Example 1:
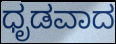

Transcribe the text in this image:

ಧೃಡವಾದ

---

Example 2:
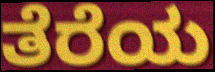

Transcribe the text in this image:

ತೆರೆಯ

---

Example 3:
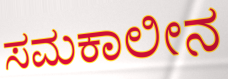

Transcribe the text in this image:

ಸಮಕಾಲೀನ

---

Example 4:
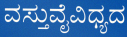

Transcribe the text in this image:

ವಸ್ತುವೈವಿಧ್ಯದ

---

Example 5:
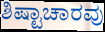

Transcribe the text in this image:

ಶಿಷ್ಟಾಚಾರವು